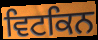
ਵਿਟਕਿਨ